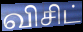
விசிட்